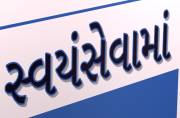
સ્વયંસેવામાં